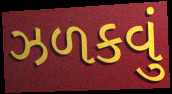
ઝળકવું